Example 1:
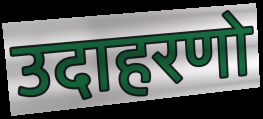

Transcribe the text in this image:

उदाहरणो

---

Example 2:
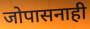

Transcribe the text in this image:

जोपासनाही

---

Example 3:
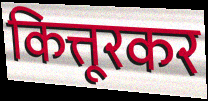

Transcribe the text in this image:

कित्तूरकर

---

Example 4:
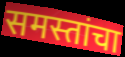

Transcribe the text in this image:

समस्तांचा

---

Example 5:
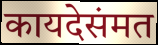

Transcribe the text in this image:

कायदेसंमत